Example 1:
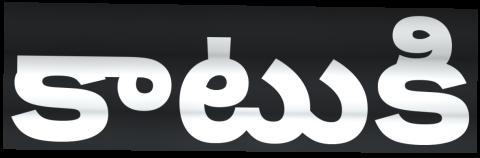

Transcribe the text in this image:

కాటుకి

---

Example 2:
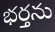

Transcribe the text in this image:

భర్తను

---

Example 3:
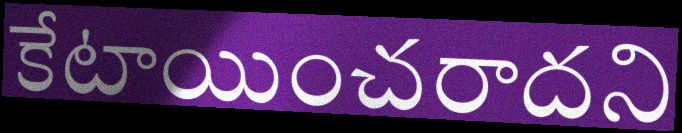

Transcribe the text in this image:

కేటాయించరాదని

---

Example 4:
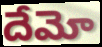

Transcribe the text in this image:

దేమో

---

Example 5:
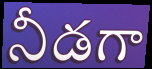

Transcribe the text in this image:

నీడగా